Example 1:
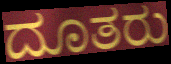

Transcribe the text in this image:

ದೂತರು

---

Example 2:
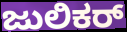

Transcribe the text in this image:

ಜುಲಿಕರ್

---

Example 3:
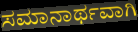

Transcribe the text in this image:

ಸಮಾನಾರ್ಥವಾಗಿ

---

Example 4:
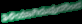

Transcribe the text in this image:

ತಿಳಿಯಾಗಿರುವುದರಿಂದ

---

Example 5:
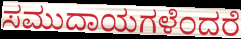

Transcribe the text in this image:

ಸಮುದಾಯಗಳೆಂದರೆ